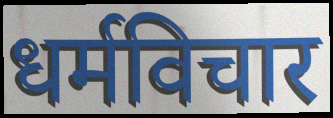
धर्मविचार